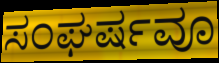
ಸಂಘರ್ಷವೂ